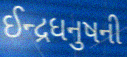
ઈન્દ્રધનુષની